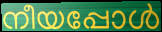
നീയപ്പോൾ